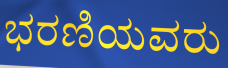
ಭರಣಿಯವರು